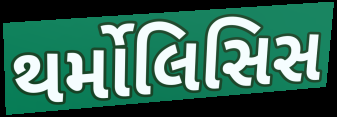
થર્મોલિસિસ